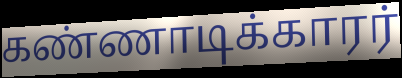
கண்ணாடிக்காரர்